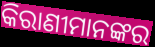
କିରାଣୀମାନଙ୍କର